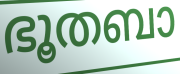
ഭൂതബാ